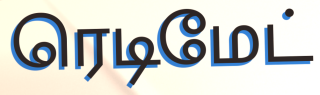
ரெடிமேட்